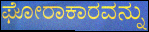
ಘೋರಾಕಾರವನ್ನು